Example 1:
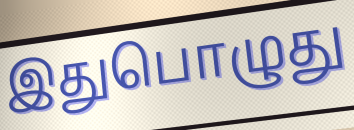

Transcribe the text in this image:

இதுபொழுது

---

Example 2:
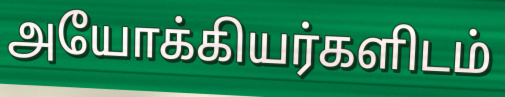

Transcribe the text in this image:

அயோக்கியர்களிடம்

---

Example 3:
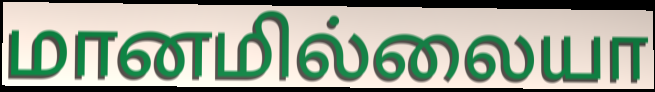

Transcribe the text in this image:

மானமில்லையா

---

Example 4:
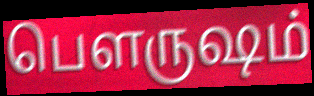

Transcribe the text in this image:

பௌருஷம்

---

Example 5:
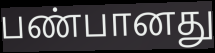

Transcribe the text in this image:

பண்பானது